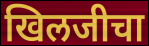
खिलजीचा